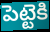
పెట్టెకి